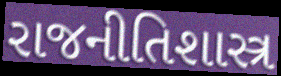
રાજનીતિશાસ્ત્ર